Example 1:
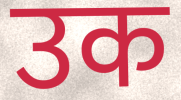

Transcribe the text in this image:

उक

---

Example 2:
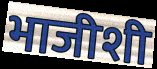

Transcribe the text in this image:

भाजीशी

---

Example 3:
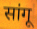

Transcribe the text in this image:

सांगू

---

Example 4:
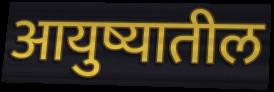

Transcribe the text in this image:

आयुष्यातील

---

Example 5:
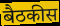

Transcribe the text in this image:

बैठकीस